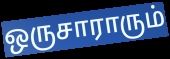
ஒருசாராரும்